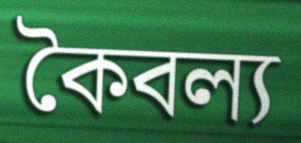
কৈবল্য